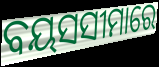
ବୟସସୀମାରେ